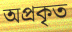
অপ্ৰকৃত